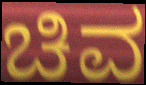
ಚಿವ